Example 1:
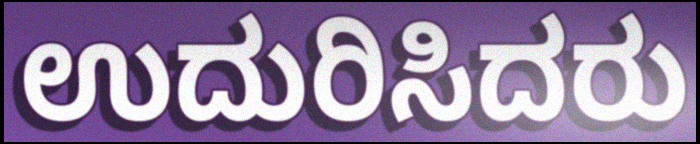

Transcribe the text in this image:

ಉದುರಿಸಿದರು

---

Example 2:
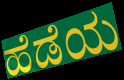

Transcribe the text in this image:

ಹೆಡೆಯ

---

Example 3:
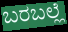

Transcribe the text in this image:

ಬರಬಲ್ಲೆ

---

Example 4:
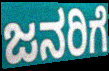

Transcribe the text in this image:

ಜನರಿಗೆ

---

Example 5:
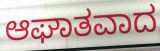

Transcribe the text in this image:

ಆಘಾತವಾದ